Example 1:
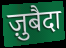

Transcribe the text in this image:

ज़ुबैदा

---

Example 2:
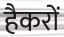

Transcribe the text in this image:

हैकरों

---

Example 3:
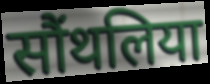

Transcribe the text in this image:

सौंथलिया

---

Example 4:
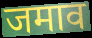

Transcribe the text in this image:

जमाव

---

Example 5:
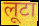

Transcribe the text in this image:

लूटा